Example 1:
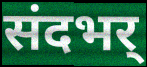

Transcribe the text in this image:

संदभर्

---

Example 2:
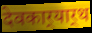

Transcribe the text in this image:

देवकार्यार्थ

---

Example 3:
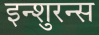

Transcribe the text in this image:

इन्शुरन्स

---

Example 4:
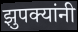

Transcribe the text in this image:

झुपक्यांनी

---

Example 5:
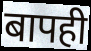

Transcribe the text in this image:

बापही